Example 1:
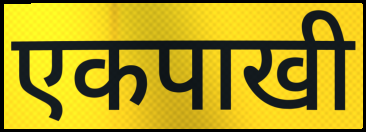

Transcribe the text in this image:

एकपाखी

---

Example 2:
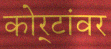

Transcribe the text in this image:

कोर्टांवर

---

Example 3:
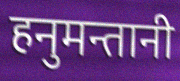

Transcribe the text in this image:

हनुमन्तानी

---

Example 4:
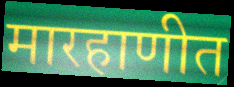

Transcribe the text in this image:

मारहाणीत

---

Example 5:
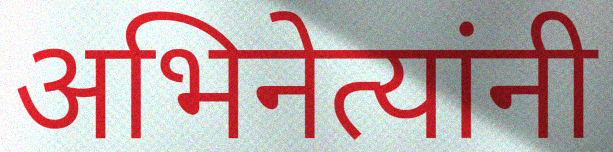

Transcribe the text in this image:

अभिनेत्यांनी